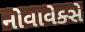
નોવાવેક્સે